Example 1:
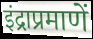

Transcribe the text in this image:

इंद्राप्रमाणें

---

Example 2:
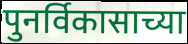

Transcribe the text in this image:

पुनर्विकासाच्या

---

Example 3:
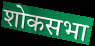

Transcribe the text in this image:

शोकसभा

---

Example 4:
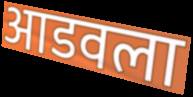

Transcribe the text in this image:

आडवला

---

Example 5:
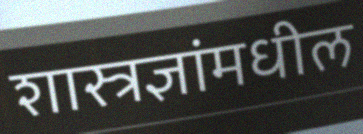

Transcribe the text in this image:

शास्त्रज्ञांमधील